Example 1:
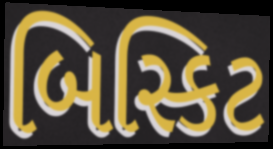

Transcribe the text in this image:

બિસ્કિટ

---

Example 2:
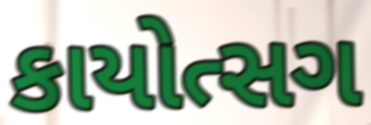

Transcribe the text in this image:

કાયોત્સગ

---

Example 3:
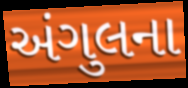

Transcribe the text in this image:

અંગુલના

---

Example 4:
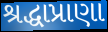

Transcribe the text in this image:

શ્રદ્ધાપ્રાણા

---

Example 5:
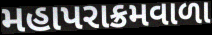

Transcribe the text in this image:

મહાપરાક્રમવાળા